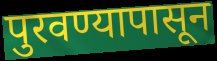
पुरवण्यापासून